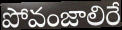
పోవంజాలిరే